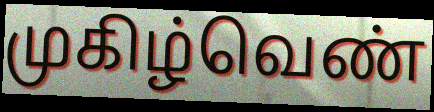
முகிழ்வெண்